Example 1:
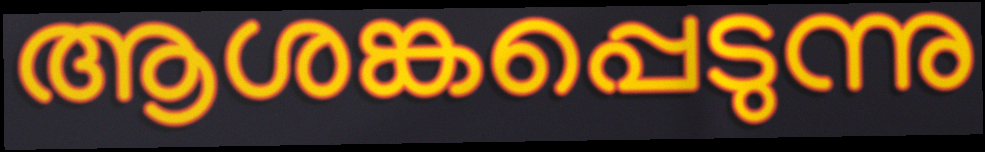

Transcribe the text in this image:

ആശങ്കപ്പെടുന്നു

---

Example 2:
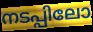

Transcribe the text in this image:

നടപ്പിലോ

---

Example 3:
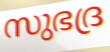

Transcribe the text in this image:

സുഭദ്ര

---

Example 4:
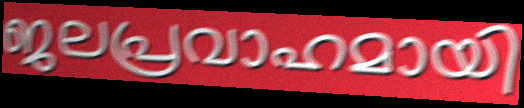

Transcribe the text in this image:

ജലപ്രവാഹമായി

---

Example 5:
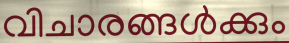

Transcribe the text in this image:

വിചാരങ്ങൾക്കും